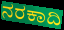
ನರಕಾದಿ